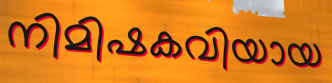
നിമിഷകവിയായ